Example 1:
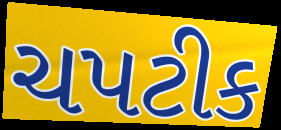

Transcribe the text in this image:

ચપટીક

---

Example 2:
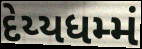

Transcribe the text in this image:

દેય્યધમ્મં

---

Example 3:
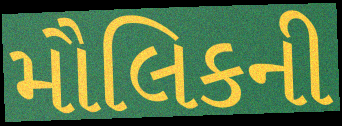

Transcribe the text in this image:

મૌલિકની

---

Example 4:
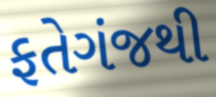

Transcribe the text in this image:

ફતેગંજથી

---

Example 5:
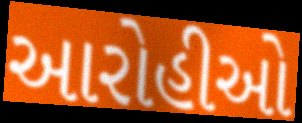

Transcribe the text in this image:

આરોહીઓ